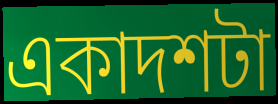
একাদশটা